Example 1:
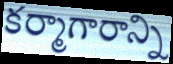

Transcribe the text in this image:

కర్మాగారాన్ని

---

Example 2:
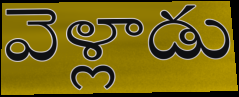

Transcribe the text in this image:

వెళ్లాడు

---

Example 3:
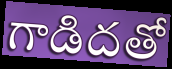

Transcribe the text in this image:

గాడిదతో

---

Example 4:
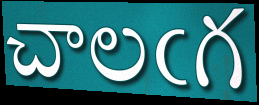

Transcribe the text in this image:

చాలఁగ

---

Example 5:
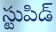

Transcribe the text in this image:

స్టుపిడ్